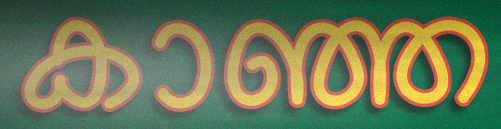
കാഞ്ഞ